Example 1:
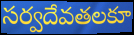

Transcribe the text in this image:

సర్వదేవతలకూ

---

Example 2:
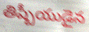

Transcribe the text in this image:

తిష్బీయుడైన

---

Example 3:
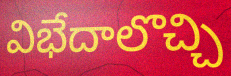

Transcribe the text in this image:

విభేదాలొచ్చి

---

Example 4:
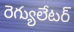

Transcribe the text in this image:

రెగ్యులేటర్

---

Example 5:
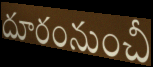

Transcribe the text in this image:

దూరంనుంచీ